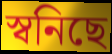
স্বনিছে